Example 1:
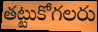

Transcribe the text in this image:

తట్టుకోగలరు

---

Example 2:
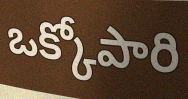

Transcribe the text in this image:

ఒక్కోపారి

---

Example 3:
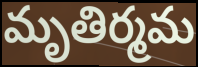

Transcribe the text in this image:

మృతిర్మమ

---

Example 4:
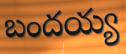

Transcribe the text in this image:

బందయ్య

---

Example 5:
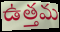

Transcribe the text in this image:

ఉత్తమ